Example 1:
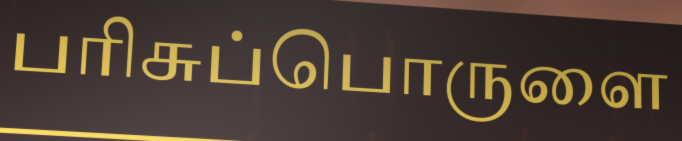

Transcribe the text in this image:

பரிசுப்பொருளை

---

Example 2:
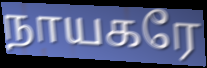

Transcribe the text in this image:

நாயகரே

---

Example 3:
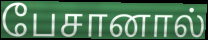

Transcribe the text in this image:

பேசானால்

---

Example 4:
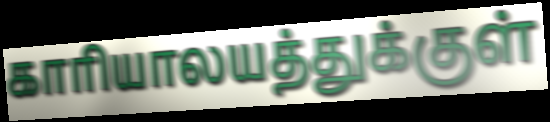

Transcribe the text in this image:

காரியாலயத்துக்குள்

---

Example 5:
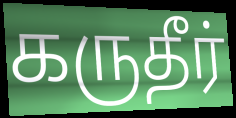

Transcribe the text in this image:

கருதீர்